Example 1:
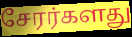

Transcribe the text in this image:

சேரர்களது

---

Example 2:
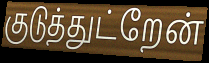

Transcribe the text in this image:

குடுத்துட்றேன்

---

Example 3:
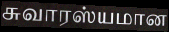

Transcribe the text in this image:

சுவாரஸ்யமான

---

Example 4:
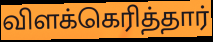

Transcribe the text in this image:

விளக்கெரித்தார்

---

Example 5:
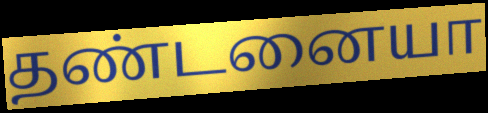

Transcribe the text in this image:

தண்டனையா